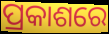
ପ୍ରକାଶରେ